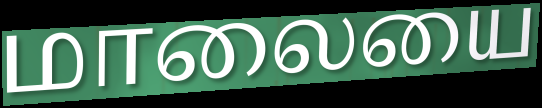
மாலையை